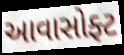
આવાસોફ્ટ